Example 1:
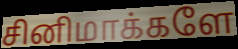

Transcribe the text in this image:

சினிமாக்களே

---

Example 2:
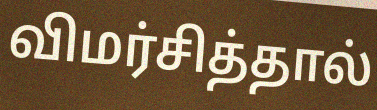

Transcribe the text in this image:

விமர்சித்தால்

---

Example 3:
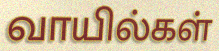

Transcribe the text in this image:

வாயில்கள்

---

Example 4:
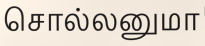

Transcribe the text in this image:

சொல்லனுமா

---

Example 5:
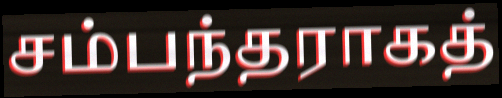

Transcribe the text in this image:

சம்பந்தராகத்